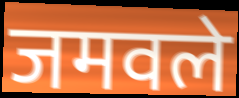
जमवले